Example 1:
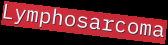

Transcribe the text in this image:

Lymphosarcoma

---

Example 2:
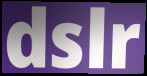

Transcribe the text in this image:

dslr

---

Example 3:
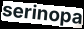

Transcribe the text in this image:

serinopa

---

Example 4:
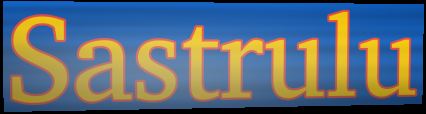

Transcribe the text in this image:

Sastrulu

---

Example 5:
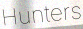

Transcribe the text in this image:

Hunters